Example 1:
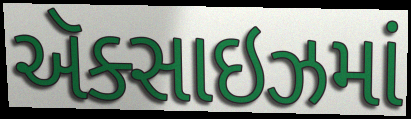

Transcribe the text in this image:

ઍક્સાઇઝમાં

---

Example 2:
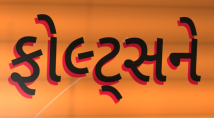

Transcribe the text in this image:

ફોલ્ટ્સને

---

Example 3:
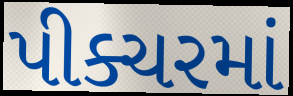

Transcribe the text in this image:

પીક્ચરમાં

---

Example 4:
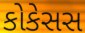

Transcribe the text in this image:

કોકેસસ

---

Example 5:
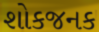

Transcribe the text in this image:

શોકજનક